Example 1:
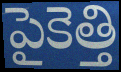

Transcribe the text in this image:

పైకెత్తి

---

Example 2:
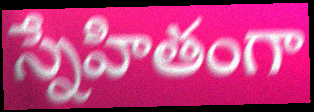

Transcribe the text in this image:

స్నేహితంగా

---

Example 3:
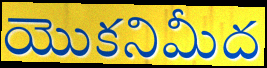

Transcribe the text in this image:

యొకనిమీద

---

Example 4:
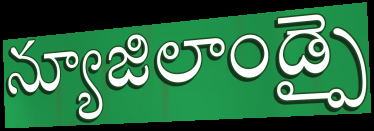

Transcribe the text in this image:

న్యూజిలాండ్పై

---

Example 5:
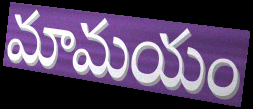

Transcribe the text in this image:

మామయం